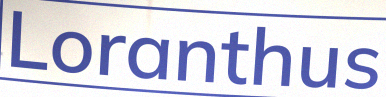
Loranthus